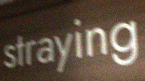
straying